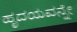
ಹೃದಯವನ್ನೇ